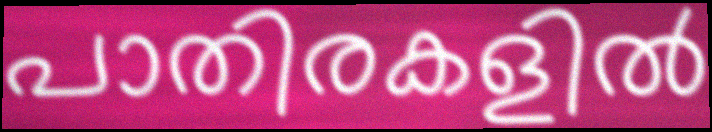
പാതിരകളിൽ